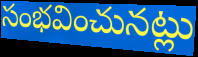
సంభవించునట్లు